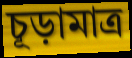
চূড়ামাত্র